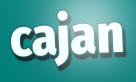
cajan